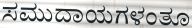
ಸಮುದಾಯಗಳಂತೂ